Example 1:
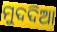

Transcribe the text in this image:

ମୁଦଦିଆ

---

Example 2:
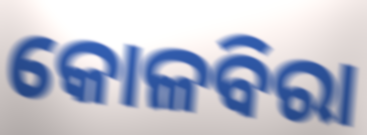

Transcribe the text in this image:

କୋଳବିରା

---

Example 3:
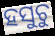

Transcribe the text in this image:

ହସୁଚୁ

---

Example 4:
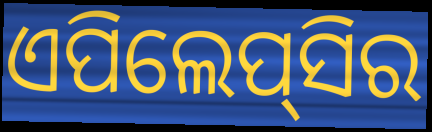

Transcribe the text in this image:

ଏପିଲେପ୍‌ସିର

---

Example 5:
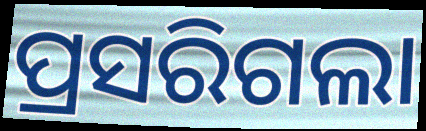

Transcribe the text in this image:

ପ୍ରସରିଗଲା